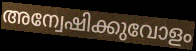
അന്വേഷിക്കുവോളം